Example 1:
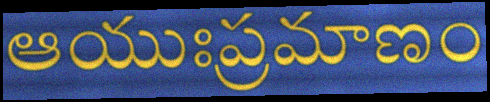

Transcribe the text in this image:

ఆయుఃప్రమాణం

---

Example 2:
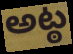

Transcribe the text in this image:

అట్ఠ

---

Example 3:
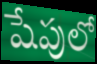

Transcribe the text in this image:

షేపులో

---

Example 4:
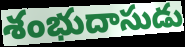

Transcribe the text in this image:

శంభుదాసుడు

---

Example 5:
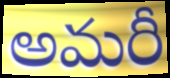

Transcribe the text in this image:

అమరీ